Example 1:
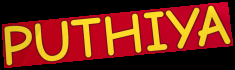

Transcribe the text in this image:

PUTHIYA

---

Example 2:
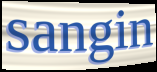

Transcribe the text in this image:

sangin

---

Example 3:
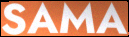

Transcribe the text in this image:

SAMA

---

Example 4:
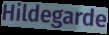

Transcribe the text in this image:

Hildegarde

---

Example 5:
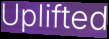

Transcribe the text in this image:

Uplifted